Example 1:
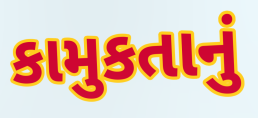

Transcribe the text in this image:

કામુકતાનું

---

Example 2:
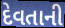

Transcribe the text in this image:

દેવતાની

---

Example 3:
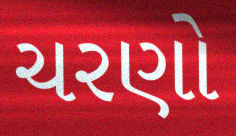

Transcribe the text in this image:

ચરણો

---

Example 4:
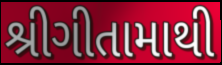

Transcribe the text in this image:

શ્રીગીતામાથી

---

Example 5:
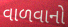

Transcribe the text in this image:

વાળવાનો